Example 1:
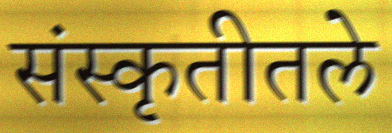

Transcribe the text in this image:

संस्कृतीतले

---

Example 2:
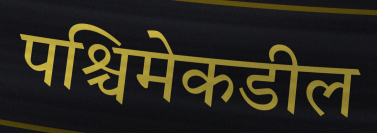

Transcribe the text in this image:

पश्चिमेकडील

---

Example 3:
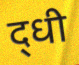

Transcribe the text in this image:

द्धी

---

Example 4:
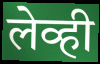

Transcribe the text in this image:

लेव्ही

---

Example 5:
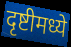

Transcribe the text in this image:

दृष्टीमध्ये